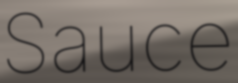
Sauce